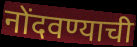
नोंदवण्याची